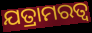
ଯତ୍ରାମରତ୍ଵ